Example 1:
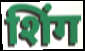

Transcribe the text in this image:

शिंग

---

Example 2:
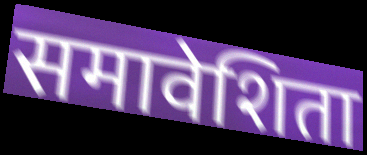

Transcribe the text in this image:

समावेशिता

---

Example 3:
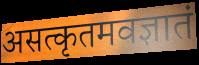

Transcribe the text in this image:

असत्कृतमवज्ञातं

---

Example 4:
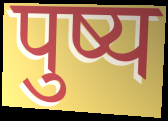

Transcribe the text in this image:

पुष्य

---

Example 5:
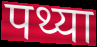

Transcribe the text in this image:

पथ्या